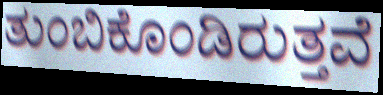
ತುಂಬಿಕೊಂಡಿರುತ್ತವೆ